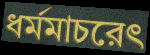
ধর্মমাচরেৎ